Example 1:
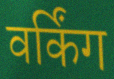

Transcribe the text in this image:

वर्किंग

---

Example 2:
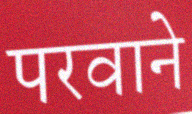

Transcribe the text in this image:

परवाने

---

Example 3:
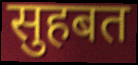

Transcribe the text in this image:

सुहबत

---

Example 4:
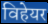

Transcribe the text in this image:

विहेयर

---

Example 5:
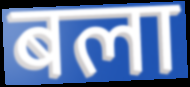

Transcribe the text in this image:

बला